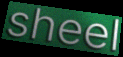
sheel